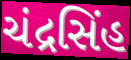
ચંદ્રસિંહ